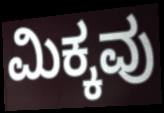
ಮಿಕ್ಕವು